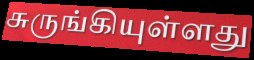
சுருங்கியுள்ளது